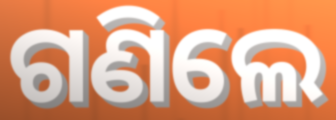
ଗଣିଲେ